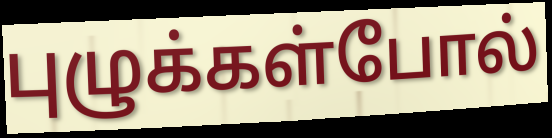
புழுக்கள்போல்